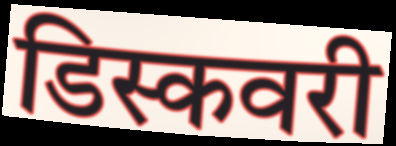
डिस्कवरी